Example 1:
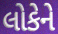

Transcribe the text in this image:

લોકેને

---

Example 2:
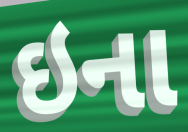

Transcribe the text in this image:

ઇના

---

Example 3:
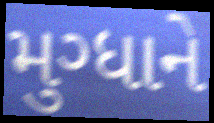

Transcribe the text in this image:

મુગ્ધાને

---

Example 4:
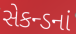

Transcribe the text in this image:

સેકન્ડનાં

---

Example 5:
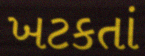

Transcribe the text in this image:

ખટકતાં